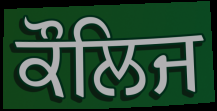
ਕੌਲਿਜ